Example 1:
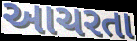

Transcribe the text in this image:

આચરતા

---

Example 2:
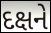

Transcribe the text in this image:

દક્ષને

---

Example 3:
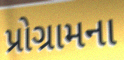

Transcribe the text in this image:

પ્રોગ્રામના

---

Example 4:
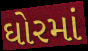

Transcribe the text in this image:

ઘોરમાં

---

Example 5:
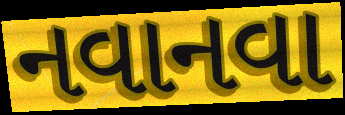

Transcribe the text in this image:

નવાનવા